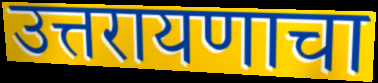
उत्तरायणाचा